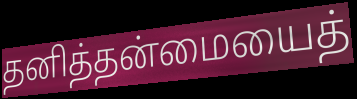
தனித்தன்மையைத்